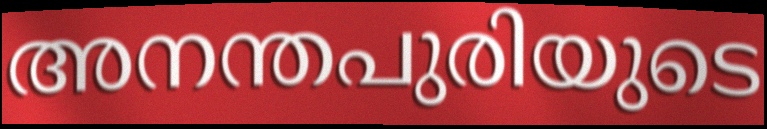
അനന്തപുരിയുടെ